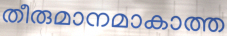
തീരുമാനമാകാത്ത